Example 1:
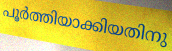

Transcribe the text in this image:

പൂർത്തിയാക്കിയതിനു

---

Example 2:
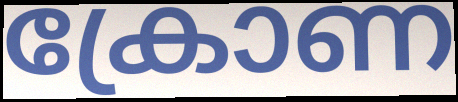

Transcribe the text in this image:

ക്രോണ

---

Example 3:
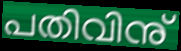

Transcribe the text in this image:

പതിവിനു്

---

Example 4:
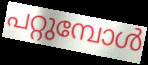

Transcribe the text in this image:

പറ്റുമ്പോൾ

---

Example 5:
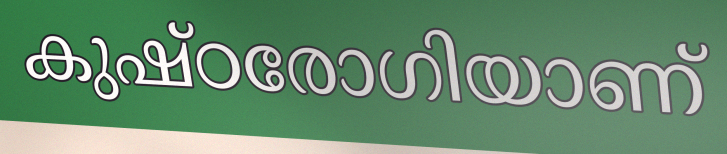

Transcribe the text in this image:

കുഷ്ഠരോഗിയാണ്